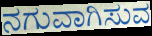
ನಗುವಾಗಿಸುವ